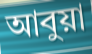
আবুয়া